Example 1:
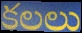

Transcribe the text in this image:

కలలు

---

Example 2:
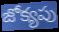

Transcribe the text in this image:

జోక్యపు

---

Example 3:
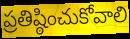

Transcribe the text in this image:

ప్రతిష్ఠించుకోవాలి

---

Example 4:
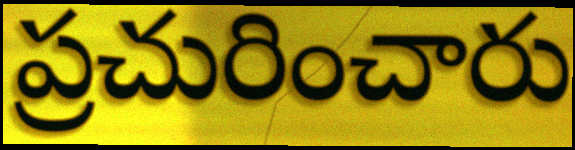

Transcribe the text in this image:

ప్రచురించారు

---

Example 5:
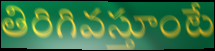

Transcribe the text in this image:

తిరిగివస్తూంటే